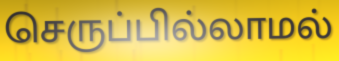
செருப்பில்லாமல்